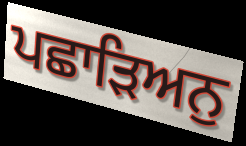
ਪਛਾੜਿਅਨੁ